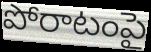
పోరాటంపై